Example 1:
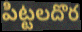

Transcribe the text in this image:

పిట్టలదొర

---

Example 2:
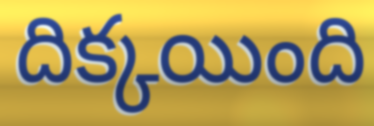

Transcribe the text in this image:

దిక్కయింది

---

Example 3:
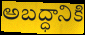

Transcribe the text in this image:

అబద్ధానికి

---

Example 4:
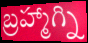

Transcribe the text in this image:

బ్రహ్మాగ్ని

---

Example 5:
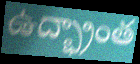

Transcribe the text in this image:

ఉద్భ్రాంత